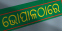
ଭୋପାଳଠାରେ